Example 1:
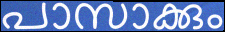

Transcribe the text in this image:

പാസാക്കും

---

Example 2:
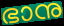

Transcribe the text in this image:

ഭാനു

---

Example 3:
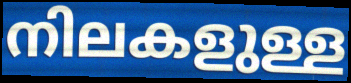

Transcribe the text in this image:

നിലകളുള്ള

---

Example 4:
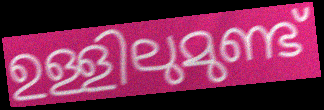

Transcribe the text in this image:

ഉള്ളിലുമുണ്ട്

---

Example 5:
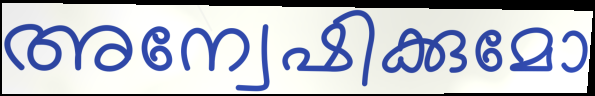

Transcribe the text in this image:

അന്വേഷിക്കുമോ